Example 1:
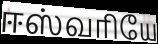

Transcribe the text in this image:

ஈஸ்வரியே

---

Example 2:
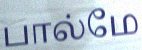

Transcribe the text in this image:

பால்மே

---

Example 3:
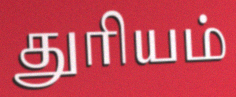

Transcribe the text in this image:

துரியம்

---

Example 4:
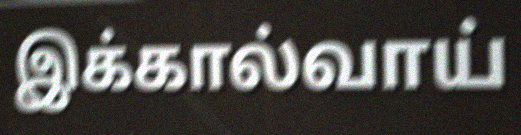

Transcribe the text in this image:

இக்கால்வாய்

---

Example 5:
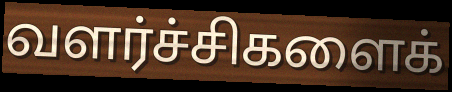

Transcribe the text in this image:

வளர்ச்சிகளைக்